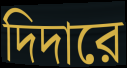
দিদারে